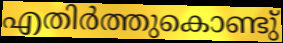
എതിർത്തുകൊണ്ടു്